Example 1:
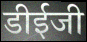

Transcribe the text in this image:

डीईजी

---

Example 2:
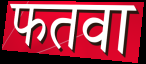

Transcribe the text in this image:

फतवा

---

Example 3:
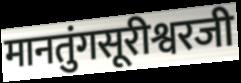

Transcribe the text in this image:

मानतुंगसूरीश्वरजी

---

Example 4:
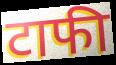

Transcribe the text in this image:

टाफी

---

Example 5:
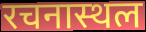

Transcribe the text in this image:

रचनास्थल